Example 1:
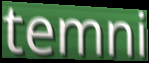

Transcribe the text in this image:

temni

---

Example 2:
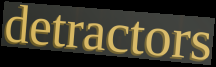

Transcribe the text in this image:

detractors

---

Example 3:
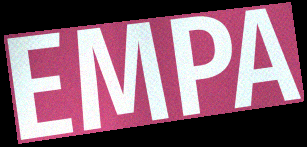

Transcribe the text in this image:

EMPA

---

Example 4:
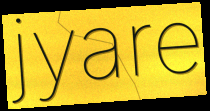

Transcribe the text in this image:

jyare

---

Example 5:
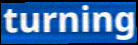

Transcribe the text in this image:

turning